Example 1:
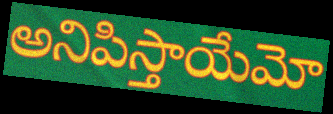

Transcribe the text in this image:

అనిపిస్తాయేమో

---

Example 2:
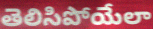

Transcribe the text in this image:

తెలిసిపోయేలా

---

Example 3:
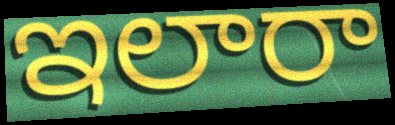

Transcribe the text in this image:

ఇలారా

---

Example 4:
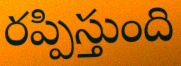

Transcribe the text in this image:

రప్పిస్తుంది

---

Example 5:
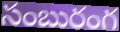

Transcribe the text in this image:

సంబురంగ